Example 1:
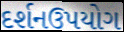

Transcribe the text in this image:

દર્શનઉપયોગ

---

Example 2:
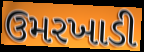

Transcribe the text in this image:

ઉમરખાડી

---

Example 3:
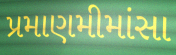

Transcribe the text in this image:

પ્રમાણમીમાંસા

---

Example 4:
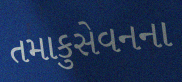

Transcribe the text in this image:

તમાકુસેવનના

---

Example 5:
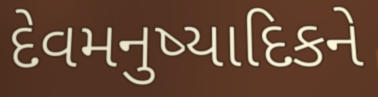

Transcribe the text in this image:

દેવમનુષ્યાદિકને